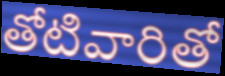
తోటివారితో